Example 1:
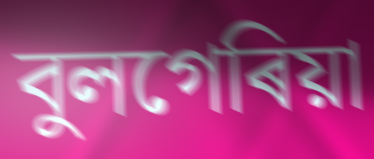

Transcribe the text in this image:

বুলগেৰিয়া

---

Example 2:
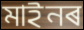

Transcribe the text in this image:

মাইনৰ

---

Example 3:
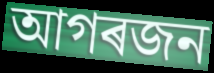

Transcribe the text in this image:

আগৰজন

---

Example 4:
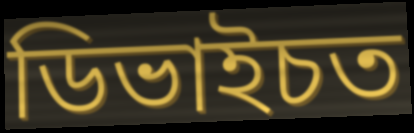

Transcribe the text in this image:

ডিভাইচত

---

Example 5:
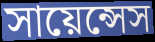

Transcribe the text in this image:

সায়েন্সেস